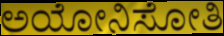
ಅಯೋನಿಸೋತಿ